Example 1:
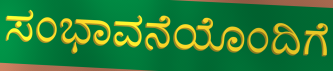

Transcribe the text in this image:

ಸಂಭಾವನೆಯೊಂದಿಗೆ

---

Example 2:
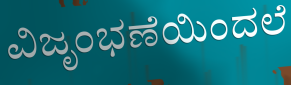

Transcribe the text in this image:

ವಿಜೃಂಭಣೆಯಿಂದಲೆ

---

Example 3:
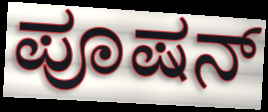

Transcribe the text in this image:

ಪೂಷನ್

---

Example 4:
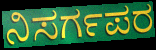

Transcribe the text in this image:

ನಿಸರ್ಗಪರ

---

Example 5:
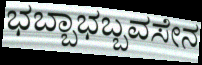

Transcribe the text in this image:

ಭಬ್ಬಾಭಬ್ಬವಸೇನ